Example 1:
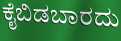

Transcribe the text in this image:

ಕೈಬಿಡಬಾರದು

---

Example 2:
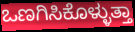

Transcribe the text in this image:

ಒಣಗಿಸಿಕೊಳ್ಳುತ್ತಾ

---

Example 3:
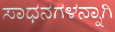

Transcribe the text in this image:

ಸಾಧನಗಳನ್ನಾಗಿ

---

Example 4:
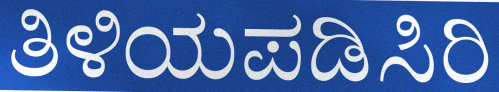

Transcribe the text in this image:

ತಿಳಿಯಪಡಿಸಿರಿ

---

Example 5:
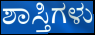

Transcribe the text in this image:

ಶಾಸ್ತಿಗಳು